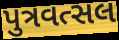
પુત્રવત્સલ